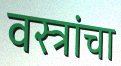
वस्त्रांचा